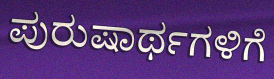
ಪುರುಷಾರ್ಥಗಳಿಗೆ